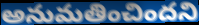
అనుమతించిందని